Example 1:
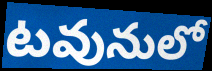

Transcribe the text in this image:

టవునులో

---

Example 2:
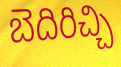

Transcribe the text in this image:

బెదిరిచ్చి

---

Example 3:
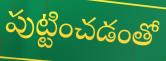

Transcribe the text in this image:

పుట్టించడంతో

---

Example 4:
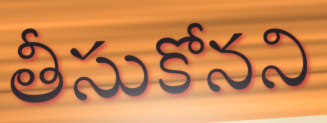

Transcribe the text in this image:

తీసుకోనని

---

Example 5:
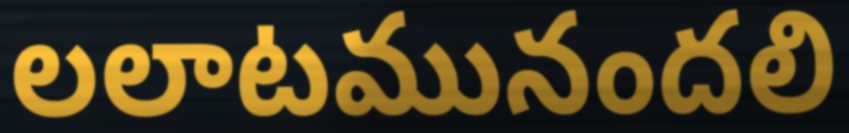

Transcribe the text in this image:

లలాటమునందలి